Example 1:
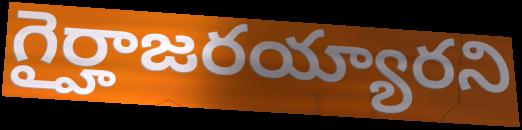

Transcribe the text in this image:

గైర్హాజరయ్యారని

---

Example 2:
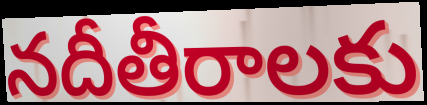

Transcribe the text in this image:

నదీతీరాలకు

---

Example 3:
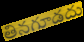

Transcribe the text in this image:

తినగూడదు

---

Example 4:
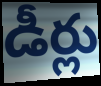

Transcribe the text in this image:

డీర్లు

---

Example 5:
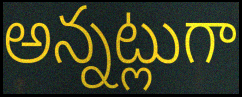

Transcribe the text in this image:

అన్నట్లుగా